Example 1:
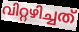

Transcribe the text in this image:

വിറ്റഴിച്ചത്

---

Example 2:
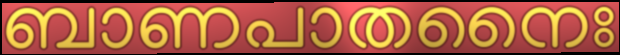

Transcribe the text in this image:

ബാണപാതനൈഃ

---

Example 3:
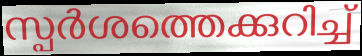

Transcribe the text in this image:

സ്പർശത്തെക്കുറിച്ച്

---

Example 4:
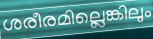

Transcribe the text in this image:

ശരീരമില്ലെങ്കിലും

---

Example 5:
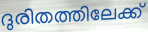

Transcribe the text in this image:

ദുരിതത്തിലേക്ക്